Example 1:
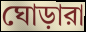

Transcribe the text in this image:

ঘোড়ারা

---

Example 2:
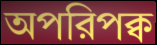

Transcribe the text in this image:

অপরিপক্ব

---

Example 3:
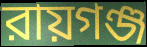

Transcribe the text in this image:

রায়গঞ্জ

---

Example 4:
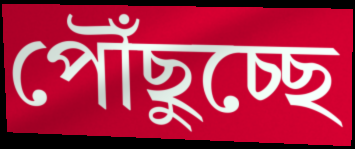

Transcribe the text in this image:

পৌঁছুচ্ছে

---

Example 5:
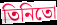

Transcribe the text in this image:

তিনিতো